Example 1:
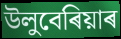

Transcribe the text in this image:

উলুবেৰিয়াৰ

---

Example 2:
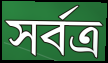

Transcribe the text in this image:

সৰ্বত্ৰ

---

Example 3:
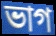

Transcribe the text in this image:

ভাগ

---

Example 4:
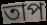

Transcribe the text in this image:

তাপ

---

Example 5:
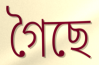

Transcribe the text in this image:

গৈছে